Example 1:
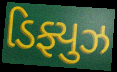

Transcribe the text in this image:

ડિફ્યુઝ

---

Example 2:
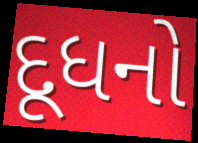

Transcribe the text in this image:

દૂધનો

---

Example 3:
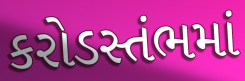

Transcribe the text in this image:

કરોડસ્તંભમાં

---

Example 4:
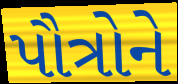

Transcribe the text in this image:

પૌત્રોને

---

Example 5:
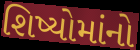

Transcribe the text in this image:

શિષ્યોમાંનો